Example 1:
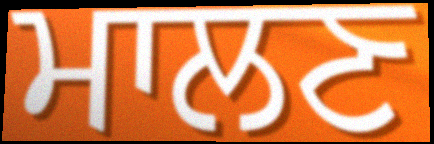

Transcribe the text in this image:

ਮਾਲਣ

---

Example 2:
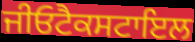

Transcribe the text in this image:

ਜੀਓਟੈਕਸਟਾਇਲ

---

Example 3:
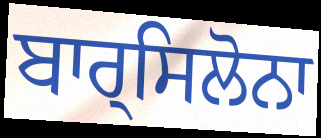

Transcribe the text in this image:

ਬਾਰ੍ਸਿਲੋਨਾ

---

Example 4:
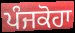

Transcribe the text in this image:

ਪੰਜਕੋਹਾ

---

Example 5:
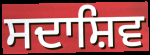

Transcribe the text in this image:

ਸਦਾਸ਼ਿਵ